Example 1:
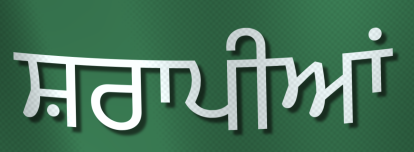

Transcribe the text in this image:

ਸ਼ਰਾਪੀਆਂ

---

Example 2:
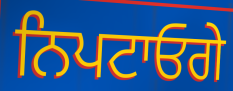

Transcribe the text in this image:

ਨਿਪਟਾਓਗੇ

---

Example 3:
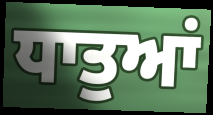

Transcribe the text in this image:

ਧਾਤੁਆਂ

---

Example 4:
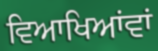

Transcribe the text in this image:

ਵਿਆਖਿਆਂਵਾਂ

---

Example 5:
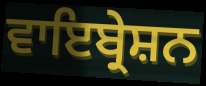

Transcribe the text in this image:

ਵਾਇਬ੍ਰੇਸ਼ਨ